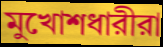
মুখোশধারীরা